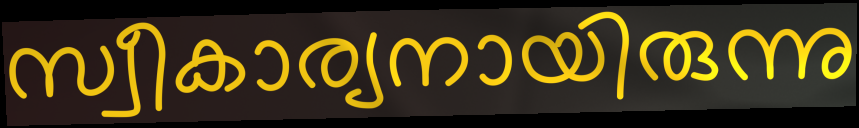
സ്വീകാര്യനായിരുന്നു